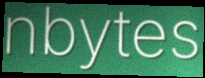
nbytes